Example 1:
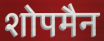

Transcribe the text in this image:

शोपमैन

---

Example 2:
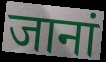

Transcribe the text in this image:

जानां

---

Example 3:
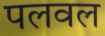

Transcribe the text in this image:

पलवल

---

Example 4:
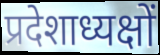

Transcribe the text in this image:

प्रदेशाध्यक्षों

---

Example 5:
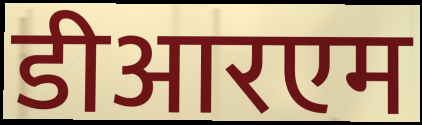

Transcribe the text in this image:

डीआरएम